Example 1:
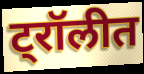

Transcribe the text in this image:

ट्रॉलीत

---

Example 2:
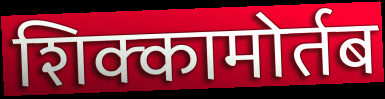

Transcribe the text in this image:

शिक्‍कामोर्तब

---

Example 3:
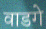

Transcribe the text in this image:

वाडगे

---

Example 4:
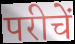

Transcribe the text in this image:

परीचें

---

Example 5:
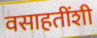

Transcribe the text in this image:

वसाहतींशी